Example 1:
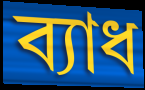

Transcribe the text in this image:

ব্যাধ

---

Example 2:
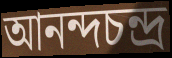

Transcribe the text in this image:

আনন্দচন্দ্র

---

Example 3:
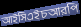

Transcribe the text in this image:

আইসিএইচআরপি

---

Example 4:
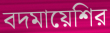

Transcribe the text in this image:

বদমায়েশির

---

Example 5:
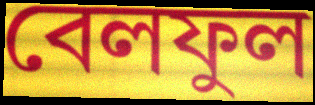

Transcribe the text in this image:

বেলফুল